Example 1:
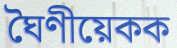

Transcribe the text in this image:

ঘৈণীয়েকক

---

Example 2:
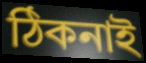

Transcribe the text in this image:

ঠিকনাই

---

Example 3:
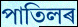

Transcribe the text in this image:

পাতিলৰ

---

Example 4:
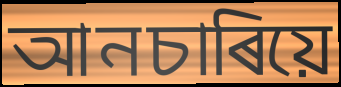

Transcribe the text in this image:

আনচাৰিয়ে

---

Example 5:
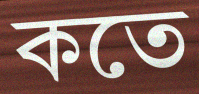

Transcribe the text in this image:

কতে